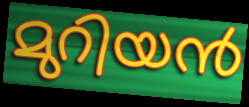
മുറിയൻ